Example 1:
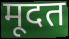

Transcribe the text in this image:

मूदत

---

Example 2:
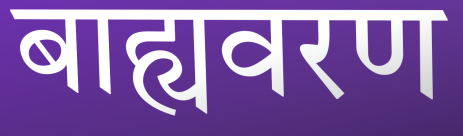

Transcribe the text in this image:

बाह्यवरण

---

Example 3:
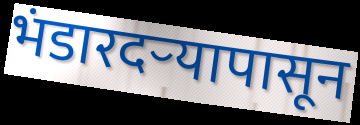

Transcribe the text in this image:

भंडारदऱ्यापासून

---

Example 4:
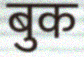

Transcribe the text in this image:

बुक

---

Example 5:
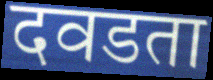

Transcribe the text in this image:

दवडता